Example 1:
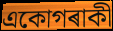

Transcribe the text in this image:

একোগৰাকী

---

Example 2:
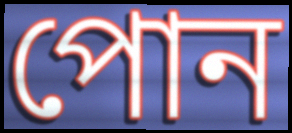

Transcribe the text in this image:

পোন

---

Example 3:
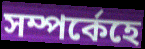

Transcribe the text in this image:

সম্পৰ্কেহে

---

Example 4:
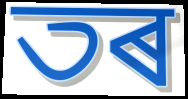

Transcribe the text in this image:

তৰ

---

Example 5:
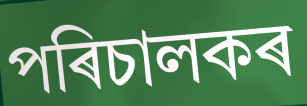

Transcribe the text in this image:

পৰিচালকৰ